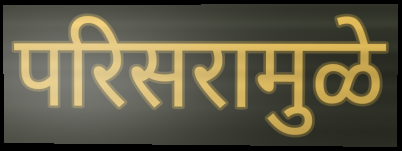
परिसरामुळे